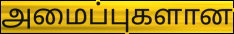
அமைப்புகளான